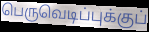
பெருவெடிப்புக்குப்